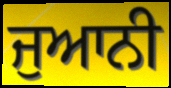
ਜੁਆਨੀ